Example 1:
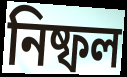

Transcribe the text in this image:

নিষ্ফল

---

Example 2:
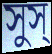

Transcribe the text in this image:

সুস্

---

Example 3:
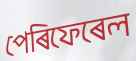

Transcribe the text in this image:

পেৰিফেৰেল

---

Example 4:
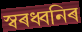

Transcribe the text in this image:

স্বৰধ্বনিৰ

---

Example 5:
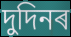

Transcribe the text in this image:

দুদিনৰ